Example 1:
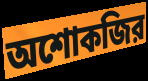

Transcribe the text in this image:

অশোকজির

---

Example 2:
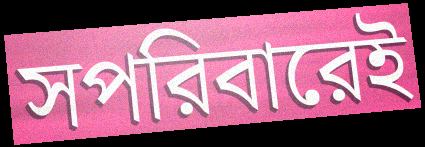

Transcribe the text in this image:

সপরিবারেই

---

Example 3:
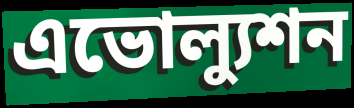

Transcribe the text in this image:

এভোল্যুশন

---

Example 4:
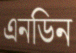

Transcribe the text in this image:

এনডিন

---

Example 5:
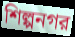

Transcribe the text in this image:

শিল্পনগর